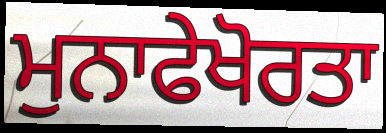
ਮੁਨਾਫੇਖੋਰਤਾ